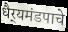
धैर्यमंडपाचे